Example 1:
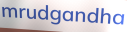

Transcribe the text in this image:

mrudgandha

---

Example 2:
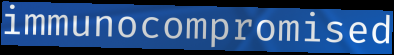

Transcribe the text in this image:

immunocompromised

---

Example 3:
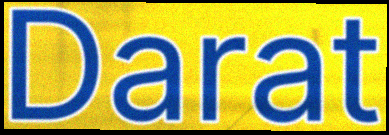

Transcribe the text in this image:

Darat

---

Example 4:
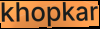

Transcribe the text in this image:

khopkar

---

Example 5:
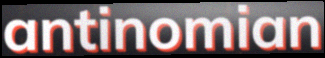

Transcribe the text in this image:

antinomian